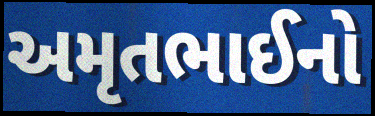
અમૃતભાઈનો